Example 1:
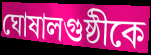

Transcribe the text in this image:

ঘোষালগুষ্ঠীকে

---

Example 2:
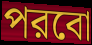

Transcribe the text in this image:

পরবো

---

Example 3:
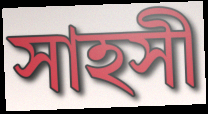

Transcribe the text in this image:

সাহসী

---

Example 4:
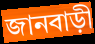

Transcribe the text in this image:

জানবাড়ী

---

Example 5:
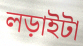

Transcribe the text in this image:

লড়াইটা